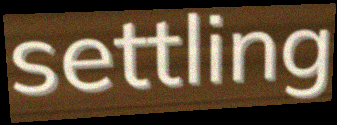
settling